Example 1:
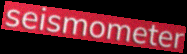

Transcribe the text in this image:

seismometer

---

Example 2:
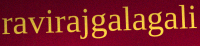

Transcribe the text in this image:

ravirajgalagali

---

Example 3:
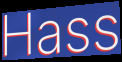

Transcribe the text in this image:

Hass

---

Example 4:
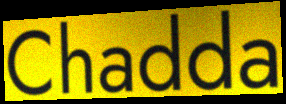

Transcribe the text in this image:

Chadda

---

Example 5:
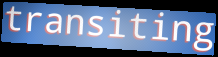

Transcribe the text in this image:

transiting